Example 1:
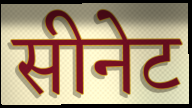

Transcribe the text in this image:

सीनेट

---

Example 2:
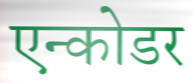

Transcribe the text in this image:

एन्कोडर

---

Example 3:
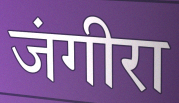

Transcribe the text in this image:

जंगीरा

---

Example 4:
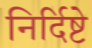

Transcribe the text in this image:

निर्दिष्टे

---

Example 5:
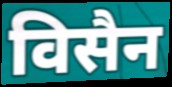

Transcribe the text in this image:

विसैन